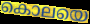
കൊലയെ